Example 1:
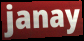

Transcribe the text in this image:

janay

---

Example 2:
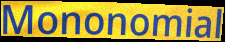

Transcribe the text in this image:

Mononomial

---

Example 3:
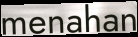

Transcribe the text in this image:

menahan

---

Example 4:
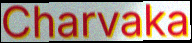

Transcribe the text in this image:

Charvaka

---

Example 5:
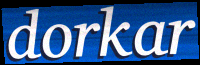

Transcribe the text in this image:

dorkar